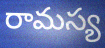
రామస్య